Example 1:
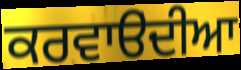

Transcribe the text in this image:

ਕਰਵਾੳਂਦੀਆ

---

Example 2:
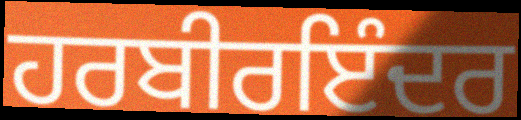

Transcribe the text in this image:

ਹਰਬੀਰਇੰਦਰ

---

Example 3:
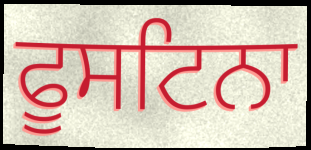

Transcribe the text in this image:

ਫੂਸਟਿਨਾ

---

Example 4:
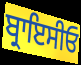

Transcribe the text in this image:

ਬ੍ਰਾਇਸੀਓ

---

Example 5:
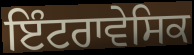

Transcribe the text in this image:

ਇੰਟਰਾਵੇਸਿਕ